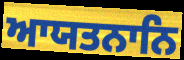
ਆਯਤਨਾਨਿ